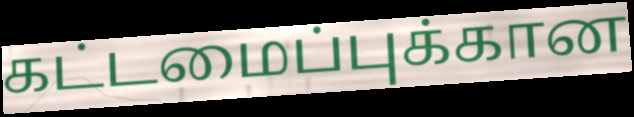
கட்டமைப்புக்கான